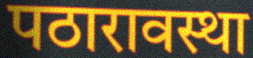
पठारावस्था